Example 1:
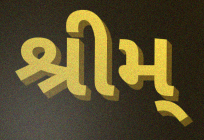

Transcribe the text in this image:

શ્રીમ્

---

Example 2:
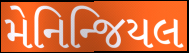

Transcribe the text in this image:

મેનિન્જિયલ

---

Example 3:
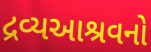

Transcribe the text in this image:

દ્રવ્યઆશ્રવનો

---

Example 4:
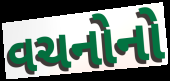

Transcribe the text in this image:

વચનોનો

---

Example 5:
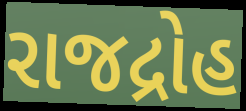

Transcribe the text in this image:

રાજદ્રોહ